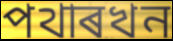
পথাৰখন